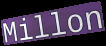
Millon